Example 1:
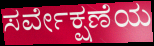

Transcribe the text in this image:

ಸರ್ವೇಕ್ಷಣೆಯ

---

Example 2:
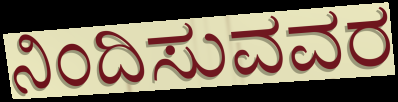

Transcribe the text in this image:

ನಿಂದಿಸುವವರ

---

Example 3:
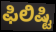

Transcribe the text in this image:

ಫಿಲಿಷ್ಟಿ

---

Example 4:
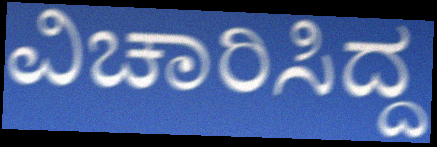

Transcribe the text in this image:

ವಿಚಾರಿಸಿದ್ದ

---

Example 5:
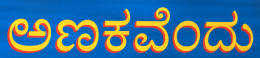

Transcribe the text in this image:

ಅಣಕವೆಂದು